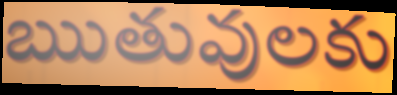
ఋతువులకు